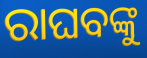
ରାଘବଙ୍କୁ